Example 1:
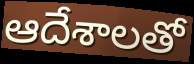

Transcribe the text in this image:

ఆదేశాలతో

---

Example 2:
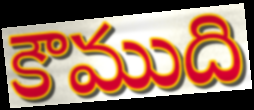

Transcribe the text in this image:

కౌముది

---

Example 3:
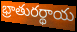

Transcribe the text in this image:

భ్రాతురర్థాయ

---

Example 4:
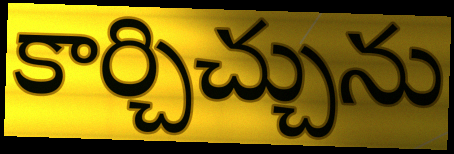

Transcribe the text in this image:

కార్చిచ్చును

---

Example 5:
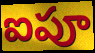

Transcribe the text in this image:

ఐపూ